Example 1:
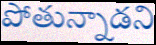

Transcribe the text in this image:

పోతున్నాడని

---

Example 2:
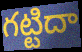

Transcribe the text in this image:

గట్టిదా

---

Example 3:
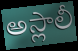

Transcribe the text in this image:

అస్లాలీ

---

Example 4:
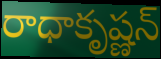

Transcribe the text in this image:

రాధాకృష్ణన్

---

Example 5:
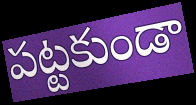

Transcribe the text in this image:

పట్టకుండా